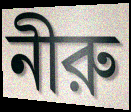
নীরু